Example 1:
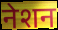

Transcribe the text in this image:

नेशन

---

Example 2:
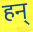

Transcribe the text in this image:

हन्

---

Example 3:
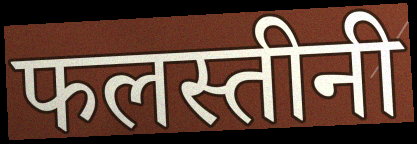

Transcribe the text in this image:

फलस्तीनी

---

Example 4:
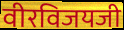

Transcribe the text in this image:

वीरविजयजी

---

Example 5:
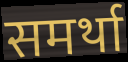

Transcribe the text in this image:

समर्था